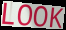
LOOK